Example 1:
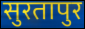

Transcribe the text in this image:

सुरतापुर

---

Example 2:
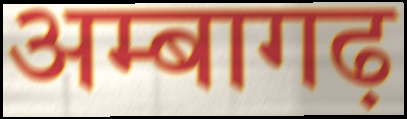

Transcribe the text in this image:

अम्बागढ़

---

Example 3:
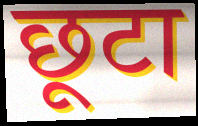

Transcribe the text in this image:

छूटा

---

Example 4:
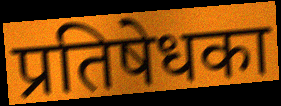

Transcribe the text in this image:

प्रतिषेधका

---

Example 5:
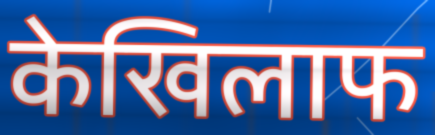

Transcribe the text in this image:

केखिलाफ